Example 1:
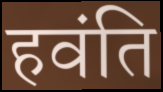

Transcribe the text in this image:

हवंति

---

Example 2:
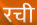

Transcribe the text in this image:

रची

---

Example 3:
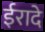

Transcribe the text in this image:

ईरादे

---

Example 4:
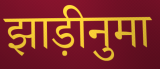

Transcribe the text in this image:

झाड़ीनुमा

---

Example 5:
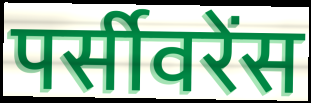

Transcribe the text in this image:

पर्सीवरेंस